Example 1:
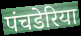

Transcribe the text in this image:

पंचडेरिया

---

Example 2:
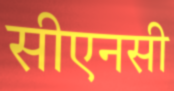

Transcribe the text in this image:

सीएनसी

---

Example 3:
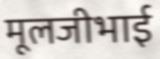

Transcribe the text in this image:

मूलजीभाई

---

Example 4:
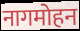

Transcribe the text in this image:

नागमोहन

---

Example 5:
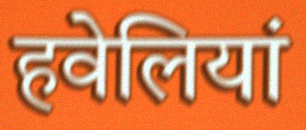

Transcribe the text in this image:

हवेलियां